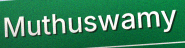
Muthuswamy